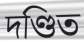
দণ্ডিত